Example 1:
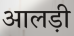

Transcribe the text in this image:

आलड़ी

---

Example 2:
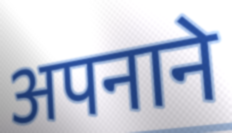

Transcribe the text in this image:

अपनाने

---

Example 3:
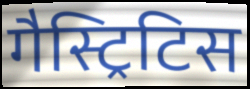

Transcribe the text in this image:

गैस्ट्रिटिस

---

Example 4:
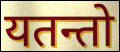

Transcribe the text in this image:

यतन्तो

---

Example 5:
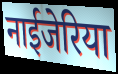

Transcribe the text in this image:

नाईजेरिया